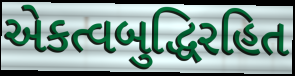
એકત્વબુદ્ધિરહિત